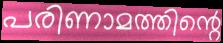
പരിണാമത്തിന്റെ